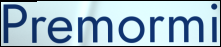
Premormi